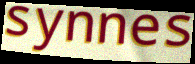
synnes